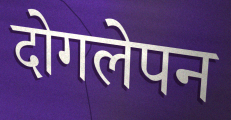
दोगलेपन